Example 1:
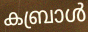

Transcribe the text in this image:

കബ്രാൾ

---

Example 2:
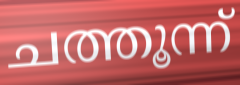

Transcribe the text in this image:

ചത്തൂന്ന്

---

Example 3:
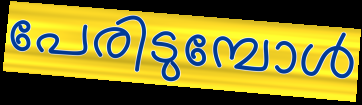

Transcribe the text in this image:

പേരിടുമ്പോൾ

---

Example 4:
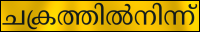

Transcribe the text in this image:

ചക്രത്തിൽനിന്ന്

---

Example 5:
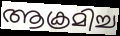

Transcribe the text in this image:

ആക്രമിച്ച